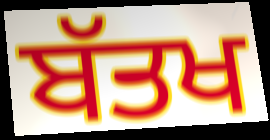
ਬੱਤਖ